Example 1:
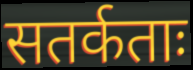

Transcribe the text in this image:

सतर्कताः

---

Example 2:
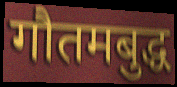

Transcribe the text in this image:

गौतमबुद्ध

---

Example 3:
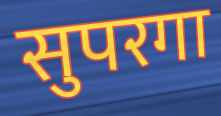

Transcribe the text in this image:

सुपरगा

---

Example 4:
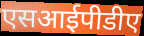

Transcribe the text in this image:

एसआईपीडीए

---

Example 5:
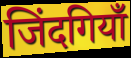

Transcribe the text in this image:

जिंदगियाँ